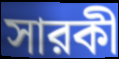
সারকী